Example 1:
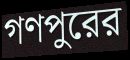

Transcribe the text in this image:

গণপুরের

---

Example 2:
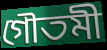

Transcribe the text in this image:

গৌতমী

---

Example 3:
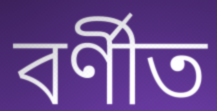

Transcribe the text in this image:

বর্ণীত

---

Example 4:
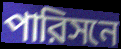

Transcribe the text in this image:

পারিসনে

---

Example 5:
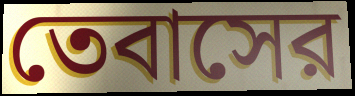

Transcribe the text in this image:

তেবাসের